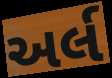
અર્લ